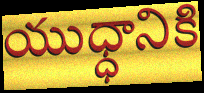
యుధ్ధానికి